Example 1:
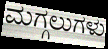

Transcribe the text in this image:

ಮಗ್ಗಲುಗಳು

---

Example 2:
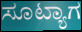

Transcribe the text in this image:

ಸೂಟ್ಯಾಗ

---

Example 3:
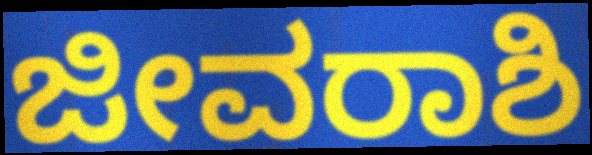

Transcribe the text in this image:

ಜೀವರಾಶಿ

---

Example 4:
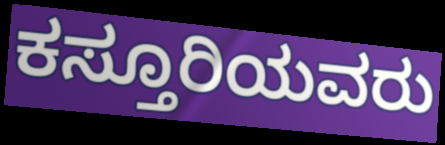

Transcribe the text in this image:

ಕಸ್ತೂರಿಯವರು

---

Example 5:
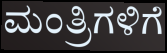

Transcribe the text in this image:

ಮಂತ್ರಿಗಳಿಗೆ